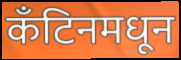
कँटिनमधून